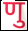
णु